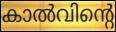
കാൽവിന്റെ